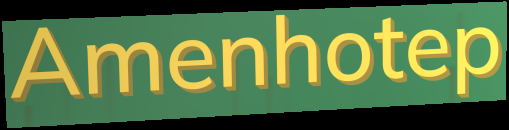
Amenhotep